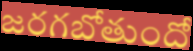
జరగబోతుందో